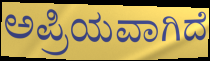
ಅಪ್ರಿಯವಾಗಿದೆ